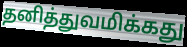
தனித்துவமிக்கது